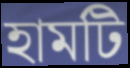
হামটি